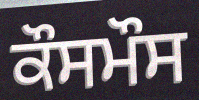
ਕੌਸਮੌਸ